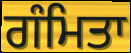
ਗੰਮਿਤਾ